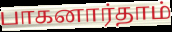
பாகனார்தாம்